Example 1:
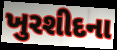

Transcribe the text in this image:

ખુરશીદના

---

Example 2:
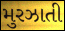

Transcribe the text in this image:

મુરઝાતી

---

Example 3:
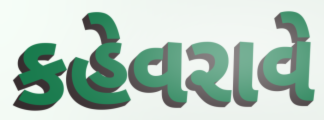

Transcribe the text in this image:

કહેવરાવે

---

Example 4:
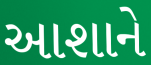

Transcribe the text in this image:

આશાને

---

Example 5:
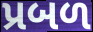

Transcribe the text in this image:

પ્રબળ